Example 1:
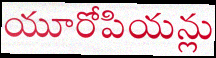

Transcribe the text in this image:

యూరోపియన్లు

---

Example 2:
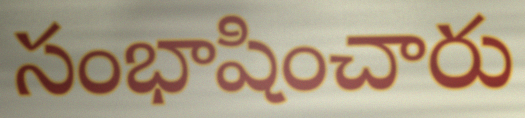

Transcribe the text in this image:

సంభాషించారు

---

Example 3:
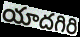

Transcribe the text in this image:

యాదగిరి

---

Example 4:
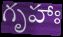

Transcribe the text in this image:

గృహాః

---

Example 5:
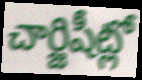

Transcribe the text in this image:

చార్జిషీట్లో